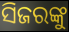
ସିଜରଙ୍କୁ